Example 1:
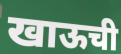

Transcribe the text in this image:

खाऊची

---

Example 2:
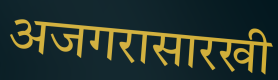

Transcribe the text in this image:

अजगरासारखी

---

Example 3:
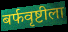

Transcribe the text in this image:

बर्फवृष्टीला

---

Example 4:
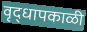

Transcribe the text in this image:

वृद्धापकाळी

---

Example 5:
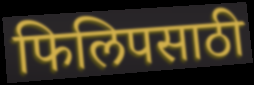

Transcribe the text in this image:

फिलिपसाठी